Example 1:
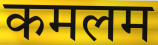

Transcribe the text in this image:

कमलम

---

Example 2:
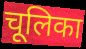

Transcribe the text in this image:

चूलिका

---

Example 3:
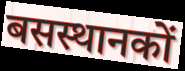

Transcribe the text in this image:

बसस्थानकों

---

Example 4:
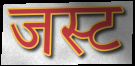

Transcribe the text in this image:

जस्ट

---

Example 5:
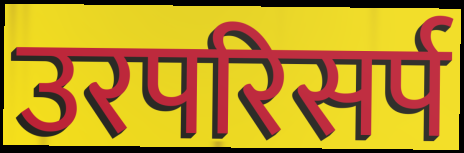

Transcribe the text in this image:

उरपरिसर्प